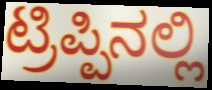
ಟ್ರಿಪ್ಪಿನಲ್ಲಿ